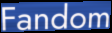
Fandom